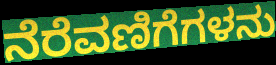
ನೆರೆವಣಿಗೆಗಳನು